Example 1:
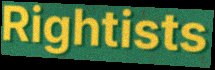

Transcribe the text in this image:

Rightists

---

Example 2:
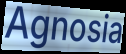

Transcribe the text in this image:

Agnosia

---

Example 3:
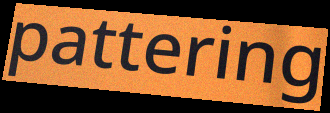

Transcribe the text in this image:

pattering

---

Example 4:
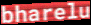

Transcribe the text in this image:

bharelu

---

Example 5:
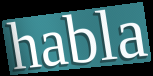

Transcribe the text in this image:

habla